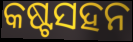
କଷ୍ଟସହନ